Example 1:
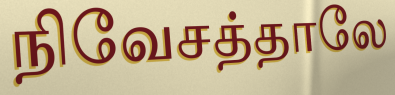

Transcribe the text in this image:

நிவேசத்தாலே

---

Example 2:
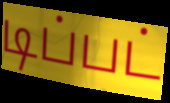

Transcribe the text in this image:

டிப்பட்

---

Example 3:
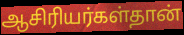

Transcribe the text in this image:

ஆசிரியர்கள்தான்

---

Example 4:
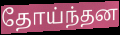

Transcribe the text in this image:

தோய்ந்தன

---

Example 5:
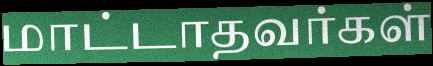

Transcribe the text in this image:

மாட்டாதவர்கள்